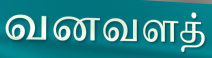
வனவளத்